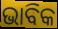
ଭାବିକ